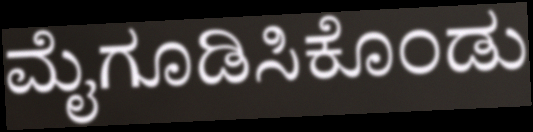
ಮೈಗೂಡಿಸಿಕೊಂಡು